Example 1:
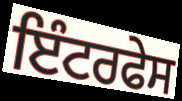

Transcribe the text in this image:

ਇੰਟਰਫੇਸ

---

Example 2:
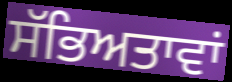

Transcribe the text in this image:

ਸੱਭਿਅਤਾਵਾਂ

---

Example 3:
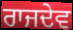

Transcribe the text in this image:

ਰਾਜਦੇਵ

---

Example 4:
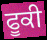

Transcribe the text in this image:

ਫੂਕੀ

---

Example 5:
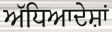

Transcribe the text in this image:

ਅੱਧਿਆਦੇਸ਼ਾਂ